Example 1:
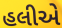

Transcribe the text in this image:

હલીએ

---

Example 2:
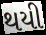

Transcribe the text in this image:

થયી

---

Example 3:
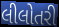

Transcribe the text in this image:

લીલોતરી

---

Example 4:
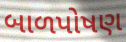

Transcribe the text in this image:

બાળપોષણ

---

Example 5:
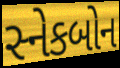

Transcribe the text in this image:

સ્નેકબોન